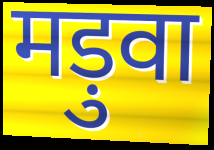
मड़ुवा